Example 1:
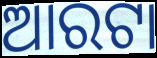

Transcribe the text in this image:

ଆରଟା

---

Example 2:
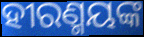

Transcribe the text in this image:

ହୀରଣ୍ମୟଙ୍କ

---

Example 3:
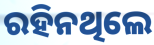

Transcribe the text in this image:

ରହିନଥିଲେ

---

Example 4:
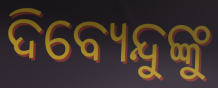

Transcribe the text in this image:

ଦିବ୍ୟେନ୍ଦୁଙ୍କୁ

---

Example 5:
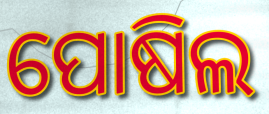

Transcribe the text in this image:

ପୋଷିଲ